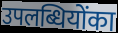
उपलब्धियोंका